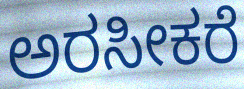
ಅರಸೀಕರೆ